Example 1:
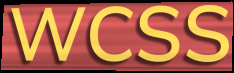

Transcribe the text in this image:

WCSS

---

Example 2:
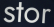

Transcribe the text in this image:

stor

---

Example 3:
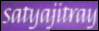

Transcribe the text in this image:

satyajitray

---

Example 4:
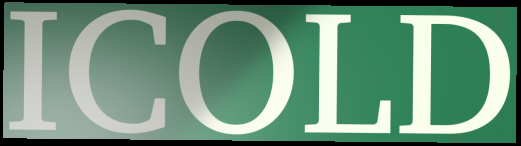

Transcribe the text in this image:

ICOLD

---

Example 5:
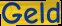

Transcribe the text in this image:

Geld